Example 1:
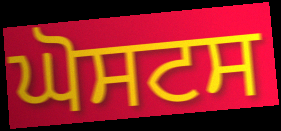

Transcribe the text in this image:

ਘੋਸਟਸ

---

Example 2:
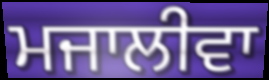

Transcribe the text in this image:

ਮਜਾਲੀਵਾ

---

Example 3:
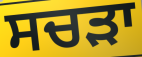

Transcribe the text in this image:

ਸਚੜਾ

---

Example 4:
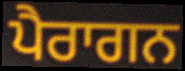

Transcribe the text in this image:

ਪੈਰਾਗਨ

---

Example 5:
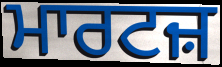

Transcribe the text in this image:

ਮਾਰਟਜ਼